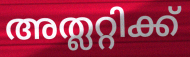
അത്ലറ്റിക്ക്